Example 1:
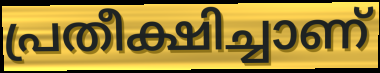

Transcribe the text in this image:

പ്രതീക്ഷിച്ചാണ്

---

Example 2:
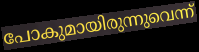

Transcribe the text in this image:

പോകുമായിരുന്നുവെന്ന്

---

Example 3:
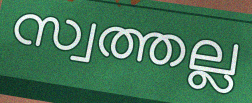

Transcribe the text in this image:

സ്വത്തല്ല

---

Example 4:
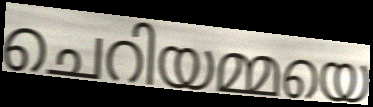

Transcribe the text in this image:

ചെറിയമ്മയെ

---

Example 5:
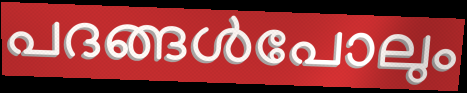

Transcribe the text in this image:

പദങ്ങൾപോലും